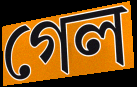
গেল